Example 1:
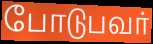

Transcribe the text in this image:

போடுபவர்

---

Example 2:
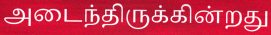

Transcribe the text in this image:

அடைந்திருக்கின்றது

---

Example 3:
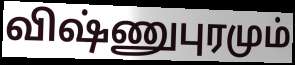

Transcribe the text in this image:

விஷ்ணுபுரமும்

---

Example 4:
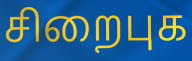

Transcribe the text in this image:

சிறைபுக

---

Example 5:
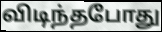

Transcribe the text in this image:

விடிந்தபோது